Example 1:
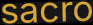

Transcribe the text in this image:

sacro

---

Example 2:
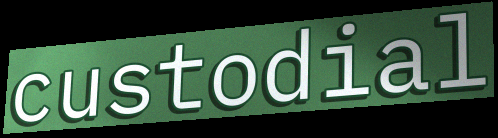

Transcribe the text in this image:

custodial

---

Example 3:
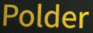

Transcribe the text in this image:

Polder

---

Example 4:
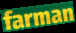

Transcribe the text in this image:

farman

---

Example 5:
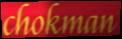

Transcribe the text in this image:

chokman